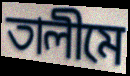
তালীমে